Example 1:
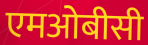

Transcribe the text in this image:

एमओबीसी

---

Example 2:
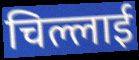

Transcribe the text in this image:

चिल्लाई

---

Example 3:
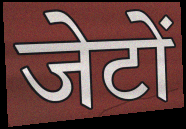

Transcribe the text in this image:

जेटों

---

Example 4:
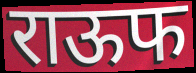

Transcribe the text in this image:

राऊफ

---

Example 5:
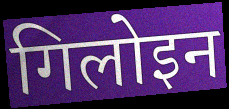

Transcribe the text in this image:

गिलोइन